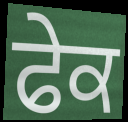
ਫੇਕ